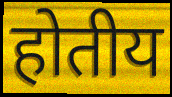
होतीय